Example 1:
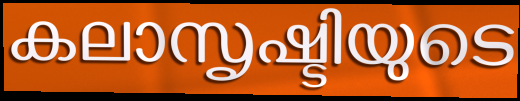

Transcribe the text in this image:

കലാസൃഷ്ടിയുടെ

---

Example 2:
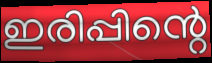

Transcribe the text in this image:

ഇരിപ്പിന്റെ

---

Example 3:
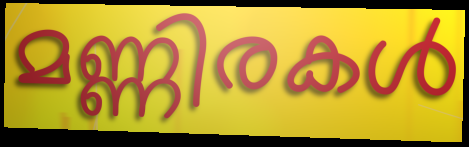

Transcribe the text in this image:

മണ്ണിരകൾ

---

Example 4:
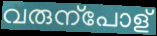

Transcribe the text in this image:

വരുന്പോള്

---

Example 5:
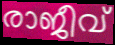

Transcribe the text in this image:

രാജീവ്